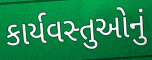
કાર્યવસ્તુઓનું